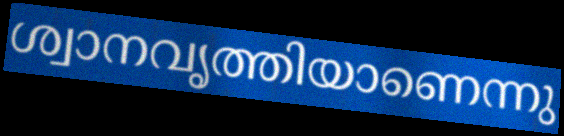
ശ്വാനവൃത്തിയാണെന്നു